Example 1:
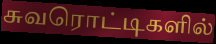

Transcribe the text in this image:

சுவரொட்டிகளில்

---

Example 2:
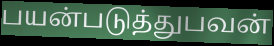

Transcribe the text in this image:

பயன்படுத்துபவன்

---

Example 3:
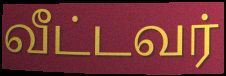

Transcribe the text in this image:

வீட்டவர்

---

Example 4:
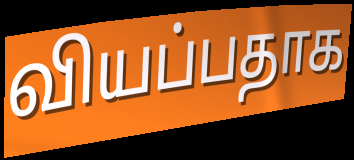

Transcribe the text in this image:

வியப்பதாக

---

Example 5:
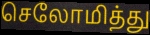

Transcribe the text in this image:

செலோமித்து